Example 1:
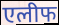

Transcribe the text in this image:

एलीफ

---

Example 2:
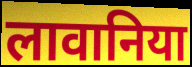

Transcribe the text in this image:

लावानिया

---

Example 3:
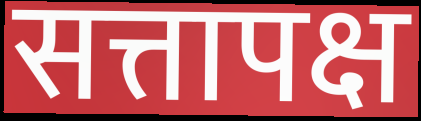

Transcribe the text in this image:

सत्तापक्ष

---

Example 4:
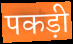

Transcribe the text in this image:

पकड़ी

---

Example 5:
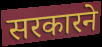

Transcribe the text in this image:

सरकारने